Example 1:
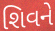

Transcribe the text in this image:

શિવને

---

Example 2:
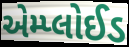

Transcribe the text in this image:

એમ્પ્લોઈડ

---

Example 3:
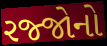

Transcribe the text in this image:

રજ્જોનો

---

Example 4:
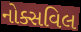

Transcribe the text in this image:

નોક્સવિલ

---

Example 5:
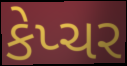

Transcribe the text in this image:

કેપ્ચર